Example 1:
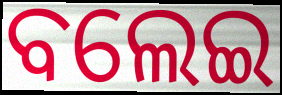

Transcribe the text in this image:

ବଲେଇ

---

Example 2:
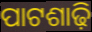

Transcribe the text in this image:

ପାଟଶାଢ଼ି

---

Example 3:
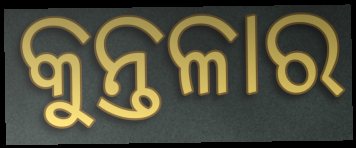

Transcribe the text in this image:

କୁନ୍ତଳାର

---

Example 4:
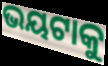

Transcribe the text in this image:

ଭୟଟାକୁ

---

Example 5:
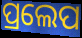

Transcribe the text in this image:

ପ୍ରଲେପ